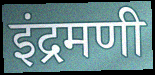
इंद्रमणी